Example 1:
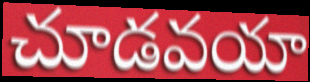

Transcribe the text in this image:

చూడవయా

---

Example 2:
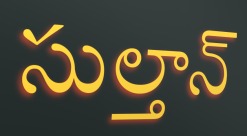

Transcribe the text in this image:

సుల్తాన్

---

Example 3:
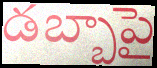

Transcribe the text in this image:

డబ్బాపై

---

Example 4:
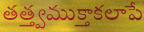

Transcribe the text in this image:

తత్త్వముక్తాకలాపే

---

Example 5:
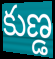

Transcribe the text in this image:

కుణ్డ